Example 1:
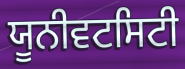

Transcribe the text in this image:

ਯੂਨੀਵਟਸਿਟੀ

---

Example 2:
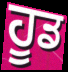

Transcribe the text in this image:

ਹੂਡ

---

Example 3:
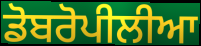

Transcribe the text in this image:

ਡੋਬਰੋਪੀਲੀਆ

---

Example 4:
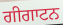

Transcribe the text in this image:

ਗੀਗਾਟਨ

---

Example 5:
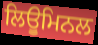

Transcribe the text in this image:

ਲਿਊਮਿਨਲ